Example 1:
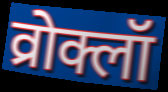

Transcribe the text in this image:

व्रोक्लॉ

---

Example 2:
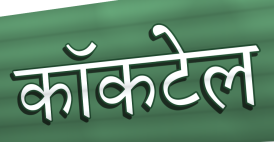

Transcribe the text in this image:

कॉकटेल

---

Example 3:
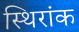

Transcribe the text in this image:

स्थिरांक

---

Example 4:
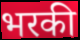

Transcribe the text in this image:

भरकी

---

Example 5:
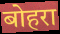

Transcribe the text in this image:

बोहरा